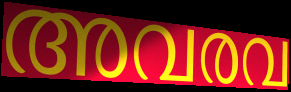
അവരവ